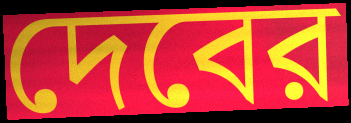
দেবের